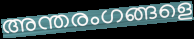
അന്തരംഗങ്ങളെ